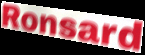
Ronsard